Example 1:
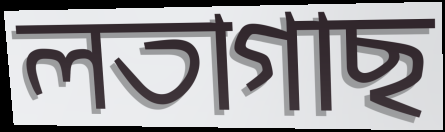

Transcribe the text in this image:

লতাগাছ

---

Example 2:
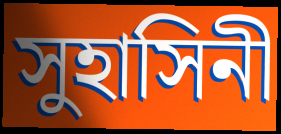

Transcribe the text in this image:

সুহাসিনী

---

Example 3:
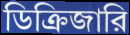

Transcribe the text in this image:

ডিক্রিজারি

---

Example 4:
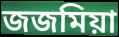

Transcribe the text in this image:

জজমিয়া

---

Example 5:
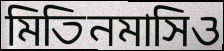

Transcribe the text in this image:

মিতিনমাসিও